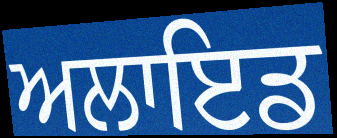
ਅਲਾਇਡ